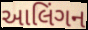
આલિંગન